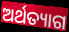
ଅର୍ଥତ୍ୟାଗ